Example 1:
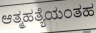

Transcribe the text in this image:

ಆತ್ಮಹತ್ಯೆಯಂತಹ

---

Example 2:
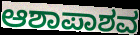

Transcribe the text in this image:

ಆಶಾಪಾಶವ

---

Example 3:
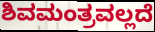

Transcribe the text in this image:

ಶಿವಮಂತ್ರವಲ್ಲದೆ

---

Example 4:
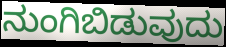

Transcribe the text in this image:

ನುಂಗಿಬಿಡುವುದು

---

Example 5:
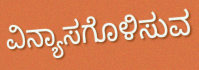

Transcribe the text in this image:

ವಿನ್ಯಾಸಗೊಳಿಸುವ